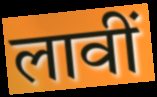
लावीं